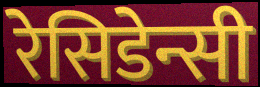
रेसिडेन्सी